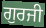
ਗੁਰਜੀ